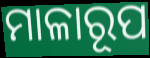
ମାଳାରୂପ